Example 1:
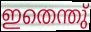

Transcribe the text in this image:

ഇതെന്തു്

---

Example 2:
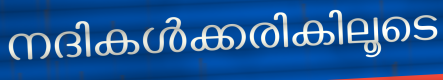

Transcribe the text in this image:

നദികൾക്കരികിലൂടെ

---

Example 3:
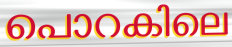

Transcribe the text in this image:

പൊറകിലെ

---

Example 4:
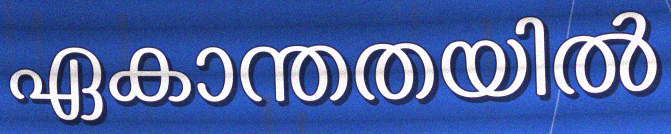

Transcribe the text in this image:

ഏകാന്തതയിൽ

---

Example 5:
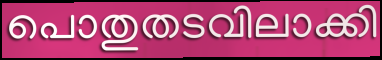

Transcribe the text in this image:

പൊതുതടവിലാക്കി